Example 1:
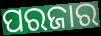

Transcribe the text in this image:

ପରଜାର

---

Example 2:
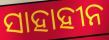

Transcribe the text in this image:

ସାହାହୀନ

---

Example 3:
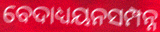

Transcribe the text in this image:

ବେଦାଧ୍ୟୟନସମ୍ପନ୍ନ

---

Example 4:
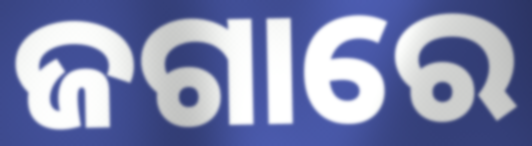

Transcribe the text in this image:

ଜଗାରେ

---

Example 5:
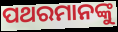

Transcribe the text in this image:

ପଥରମାନଙ୍କୁ